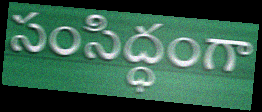
సంసిద్ధంగా